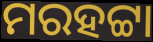
ମରହଟ୍ଟା